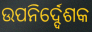
ଉପନିର୍ଦ୍ଦେଶକ